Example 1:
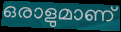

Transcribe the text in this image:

ഒരാളുമാണ്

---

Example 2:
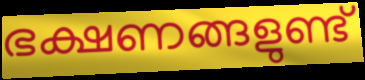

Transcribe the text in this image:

ഭക്ഷണങ്ങളുണ്ട്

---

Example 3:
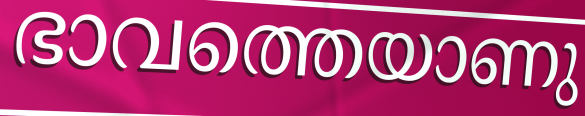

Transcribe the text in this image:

ഭാവത്തെയാണു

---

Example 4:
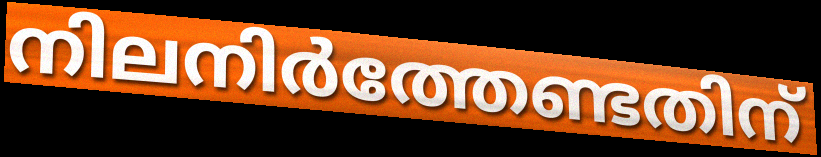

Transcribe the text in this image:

നിലനിർത്തേണ്ടതിന്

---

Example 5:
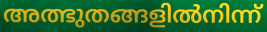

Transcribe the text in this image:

അത്ഭുതങ്ങളിൽനിന്ന്